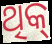
ଥିକ୍